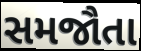
સમજૌતા